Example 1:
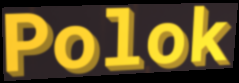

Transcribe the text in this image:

Polok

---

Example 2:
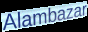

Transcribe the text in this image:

Alambazar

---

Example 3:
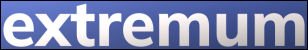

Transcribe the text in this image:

extremum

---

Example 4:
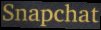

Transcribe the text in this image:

Snapchat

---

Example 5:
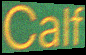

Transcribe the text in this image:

Calf